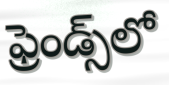
ఫ్రెండ్స్‌లో